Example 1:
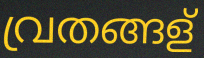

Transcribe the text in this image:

വ്രതങ്ങള്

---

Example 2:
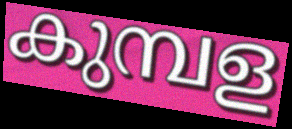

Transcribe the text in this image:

കുമ്പള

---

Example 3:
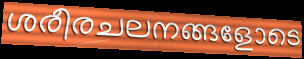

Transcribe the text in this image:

ശരീരചലനങ്ങളോടെ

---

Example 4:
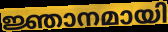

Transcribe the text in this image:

ജ്ഞാനമായി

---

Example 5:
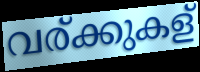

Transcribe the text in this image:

വര്ക്കുകള്